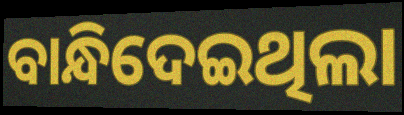
ବାନ୍ଧିଦେଇଥିଲା